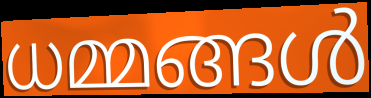
ധമ്മങ്ങൾ